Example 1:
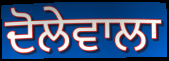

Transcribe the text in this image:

ਦੋਲੇਵਾਲਾ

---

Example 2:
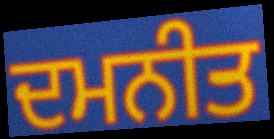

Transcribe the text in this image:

ਦਮਨੀਤ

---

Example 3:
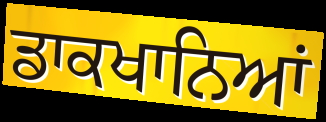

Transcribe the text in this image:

ਡਾਕਖਾਨਿਆਂ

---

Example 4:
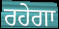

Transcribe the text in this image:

ਰਹੇਗਾ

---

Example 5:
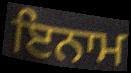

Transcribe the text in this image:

ਇਨਾਮ